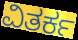
ವಿತರ್ಕ